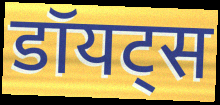
डॉयट्स